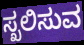
ಸ್ಖಲಿಸುವ